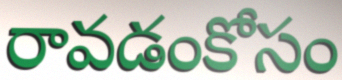
రావడంకోసం